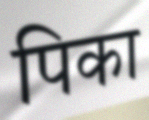
पिका